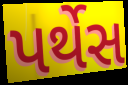
પર્થેસ